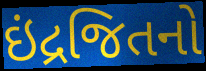
ઇંદ્રજિતનો